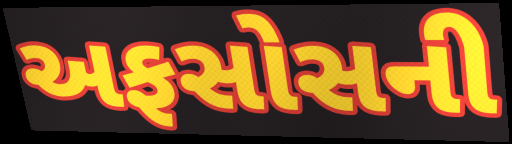
અફસોસની